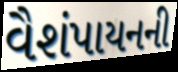
વૈશંપાયનની